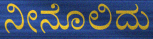
ನೀನೊಲಿದು